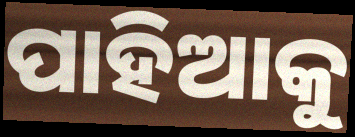
ପାହିଆକୁ